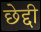
छेद्दी